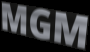
MGM